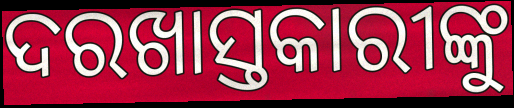
ଦରଖାସ୍ତକାରୀଙ୍କୁ